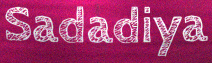
Sadadiya